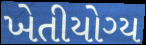
ખેતીયોગ્ય